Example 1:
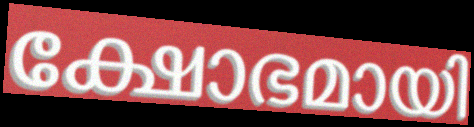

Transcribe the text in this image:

ക്ഷോഭമായി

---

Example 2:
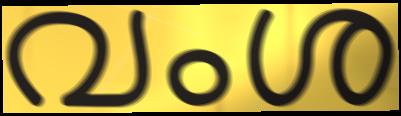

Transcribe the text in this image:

വംശ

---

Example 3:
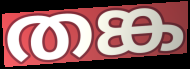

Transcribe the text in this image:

തങ്ക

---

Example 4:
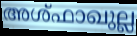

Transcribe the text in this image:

അശ്ഫാഖുല്ല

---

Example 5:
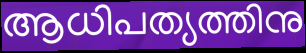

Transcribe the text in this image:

ആധിപത്യത്തിനു